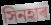
সিনহাৰ